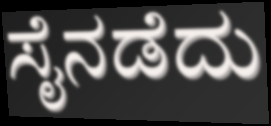
ಸೈನಡೆದು